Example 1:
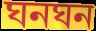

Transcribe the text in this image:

ঘনঘন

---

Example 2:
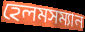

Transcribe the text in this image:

হেলমসম্যান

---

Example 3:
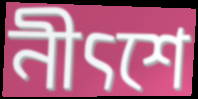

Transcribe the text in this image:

নীৎশে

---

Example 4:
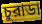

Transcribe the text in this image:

চুরাডা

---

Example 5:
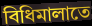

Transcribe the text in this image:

বিধিমালাতে